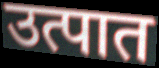
उत्पात